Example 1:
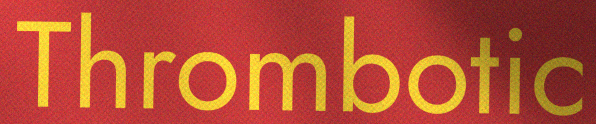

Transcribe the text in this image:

Thrombotic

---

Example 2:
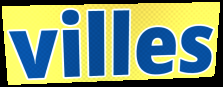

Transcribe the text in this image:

villes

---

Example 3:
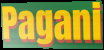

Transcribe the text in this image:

Pagani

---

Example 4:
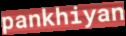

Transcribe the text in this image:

pankhiyan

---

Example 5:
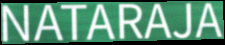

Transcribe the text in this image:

NATARAJA